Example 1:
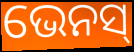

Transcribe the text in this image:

ଭେନସ୍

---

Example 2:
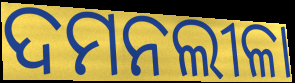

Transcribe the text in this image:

ଦମନଲୀଳା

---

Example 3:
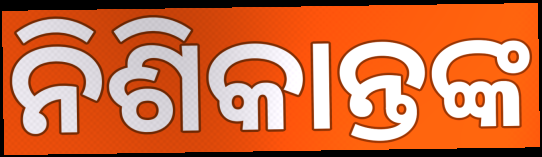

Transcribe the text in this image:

ନିଶିକାନ୍ତଙ୍କ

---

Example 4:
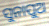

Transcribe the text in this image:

ସୁନାପୁଅ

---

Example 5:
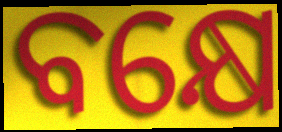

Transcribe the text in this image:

ବକ୍ଷେ